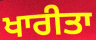
ਖਾਰੀਤਾ